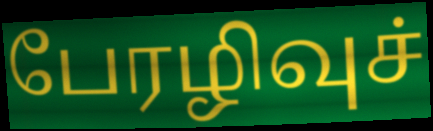
பேரழிவுச்